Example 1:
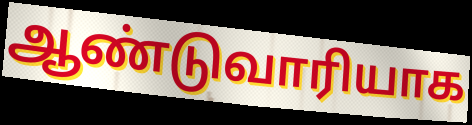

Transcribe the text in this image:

ஆண்டுவாரியாக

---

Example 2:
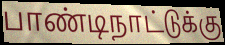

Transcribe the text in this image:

பாண்டிநாட்டுக்கு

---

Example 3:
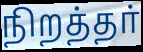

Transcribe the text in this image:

நிறத்தர்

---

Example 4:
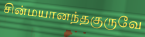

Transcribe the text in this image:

சின்மயானந்தகுருவே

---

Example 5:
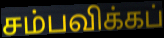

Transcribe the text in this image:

சம்பவிக்கப்